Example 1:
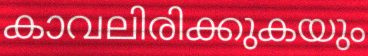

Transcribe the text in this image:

കാവലിരിക്കുകയും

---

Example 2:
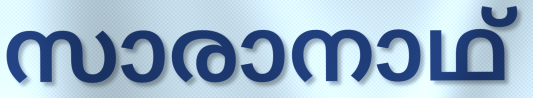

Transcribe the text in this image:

സാരാനാഥ്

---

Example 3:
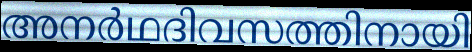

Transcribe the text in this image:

അനർഥദിവസത്തിനായി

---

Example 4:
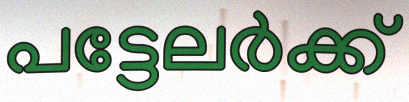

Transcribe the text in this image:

പട്ടേലർക്ക്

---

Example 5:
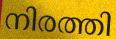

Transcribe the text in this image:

നിരത്തി